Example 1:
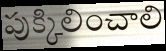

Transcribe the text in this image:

పుక్కిలించాలి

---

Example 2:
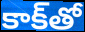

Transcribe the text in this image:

కాక్‌తో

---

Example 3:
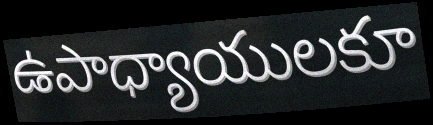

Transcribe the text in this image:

ఉపాధ్యాయులకూ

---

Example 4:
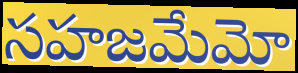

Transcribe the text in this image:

సహజమేమో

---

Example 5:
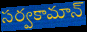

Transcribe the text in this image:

సర్వకామాన్